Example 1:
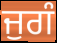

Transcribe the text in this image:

ਜੁਗੰ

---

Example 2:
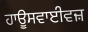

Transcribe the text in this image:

ਹਾਊਸਵਾਈਵਜ਼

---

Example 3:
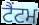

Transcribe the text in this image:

ਟੈਂਟਮ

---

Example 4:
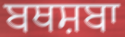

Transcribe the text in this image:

ਬਥਸ਼ਬਾ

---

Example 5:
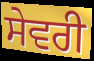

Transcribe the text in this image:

ਸੇਵਰੀ